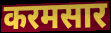
करमसार